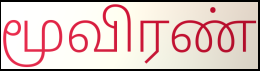
மூவிரண்